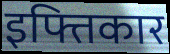
इफ्तिकार